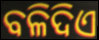
ବଳିଦିଏ